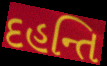
દહન્તિ